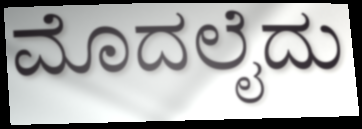
ಮೊದಲೈದು